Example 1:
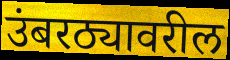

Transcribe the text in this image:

उंबरठ्यावरील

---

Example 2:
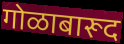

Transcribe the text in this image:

गोळाबारूद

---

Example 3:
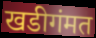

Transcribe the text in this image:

खडीगंमत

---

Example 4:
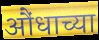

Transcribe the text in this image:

औंधाच्या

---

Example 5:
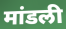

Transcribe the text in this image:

मांडली